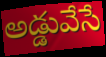
అడ్డువేసే